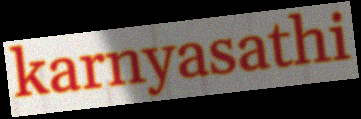
karnyasathi